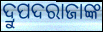
ଦ୍ରୁପଦରାଜାଙ୍କ